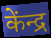
केंन्द्र